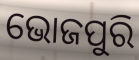
ଭୋଜପୁରି